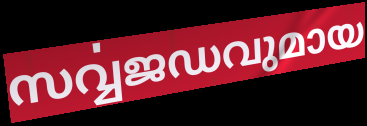
സൎവ്വജഡവുമായ